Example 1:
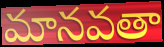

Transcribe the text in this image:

మానవతా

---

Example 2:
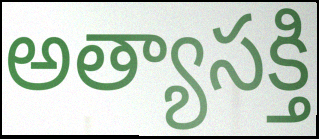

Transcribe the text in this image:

అత్యాసక్తి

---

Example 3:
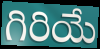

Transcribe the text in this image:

గిరియే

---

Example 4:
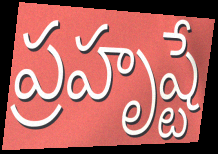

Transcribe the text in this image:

ప్రహృష్టే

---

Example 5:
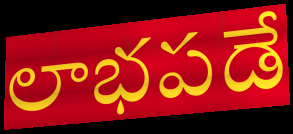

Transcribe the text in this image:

లాభపడే